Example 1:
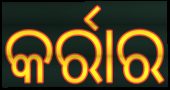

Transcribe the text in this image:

କର୍ରାର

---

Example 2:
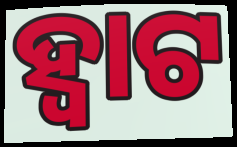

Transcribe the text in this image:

ହ୍ଵାଟ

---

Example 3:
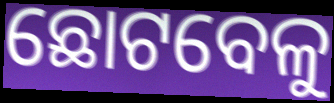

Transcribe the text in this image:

ଛୋଟବେଳୁ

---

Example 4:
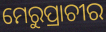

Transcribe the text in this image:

ମେରୁପ୍ରାଚୀର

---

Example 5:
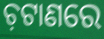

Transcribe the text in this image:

ଚ଼ଟାଣରେ